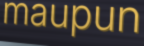
maupun